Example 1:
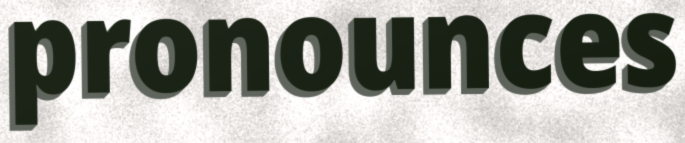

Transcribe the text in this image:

pronounces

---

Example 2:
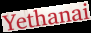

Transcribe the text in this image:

Yethanai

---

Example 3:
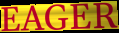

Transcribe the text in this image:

EAGER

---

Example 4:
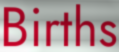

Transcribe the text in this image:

Births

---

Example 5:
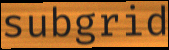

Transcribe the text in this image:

subgrid